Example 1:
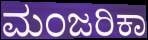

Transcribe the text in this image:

ಮಂಜರಿಕಾ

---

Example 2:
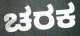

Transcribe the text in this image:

ಚರಕ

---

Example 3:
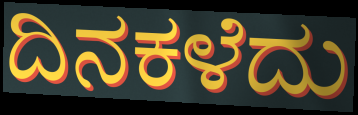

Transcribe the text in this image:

ದಿನಕಳೆದು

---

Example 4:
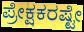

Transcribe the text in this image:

ಪ್ರೇಕ್ಷಕರಷ್ಟೇ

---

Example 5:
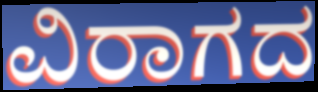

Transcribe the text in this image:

ವಿರಾಗದ